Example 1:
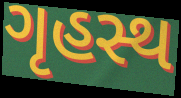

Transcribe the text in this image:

ગૃહસ્થ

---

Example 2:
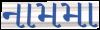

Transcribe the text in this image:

નામમા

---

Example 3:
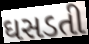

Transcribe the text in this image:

ઘસડતી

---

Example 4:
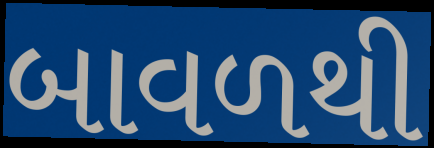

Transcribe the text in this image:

બાવળથી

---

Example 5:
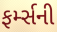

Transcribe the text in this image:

ફર્મ્સની